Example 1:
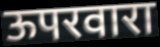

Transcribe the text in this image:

ऊपरवारा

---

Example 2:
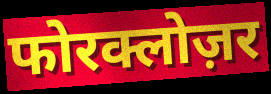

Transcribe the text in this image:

फोरक्लोज़र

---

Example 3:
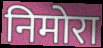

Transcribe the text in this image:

निमोरा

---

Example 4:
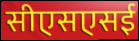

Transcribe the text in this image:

सीएसएसई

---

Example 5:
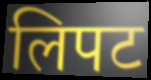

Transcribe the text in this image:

लिपट